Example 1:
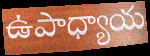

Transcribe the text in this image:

ఉపాధ్యాయ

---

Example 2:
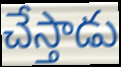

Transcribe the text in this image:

చేస్తాడు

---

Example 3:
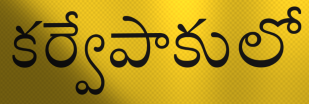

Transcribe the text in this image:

కర్వేపాకులో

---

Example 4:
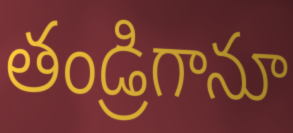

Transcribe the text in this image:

తండ్రిగానూ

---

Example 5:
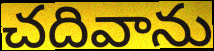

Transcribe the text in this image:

చదివాను